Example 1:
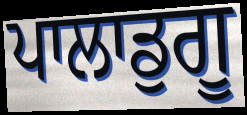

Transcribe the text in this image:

ਪਾਲਾਡੁਗੂ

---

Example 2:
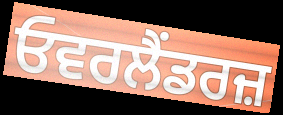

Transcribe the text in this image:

ਓਵਰਲੈਂਡਰਜ਼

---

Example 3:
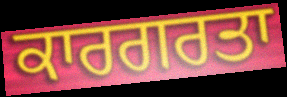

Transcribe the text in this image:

ਕਾਰਗਰਤਾ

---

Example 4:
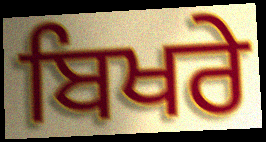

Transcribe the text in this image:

ਬਿਖਰੇ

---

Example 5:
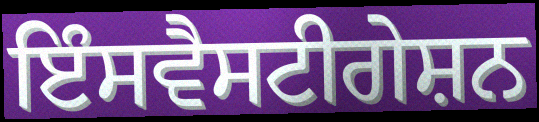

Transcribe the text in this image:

ਇੰਸਵੈਸਟੀਗੇਸ਼ਨ